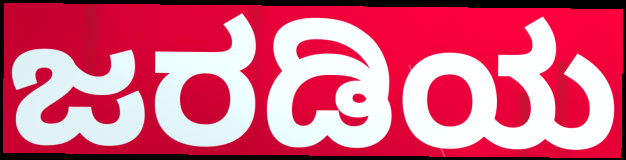
ಜರಡಿಯ